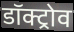
डॉक्ट्रोव